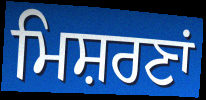
ਮਿਸ਼ਰਣਾਂ